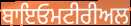
ਬਾਇਓਮਟੀਰੀਅਲ